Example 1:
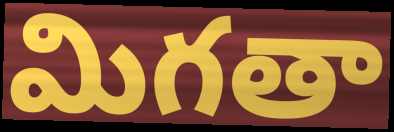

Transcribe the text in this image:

మిగతా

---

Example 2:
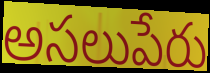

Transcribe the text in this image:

అసలుపేరు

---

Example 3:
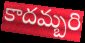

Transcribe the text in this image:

కాదమ్బరి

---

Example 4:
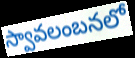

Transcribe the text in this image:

స్వావలంబనలో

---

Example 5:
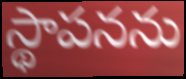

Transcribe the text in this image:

స్థాపనను